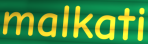
malkati